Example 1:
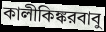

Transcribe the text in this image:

কালীকিঙ্করবাবু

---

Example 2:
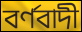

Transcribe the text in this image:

বর্ণবাদী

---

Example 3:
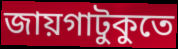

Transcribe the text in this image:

জায়গাটুকুতে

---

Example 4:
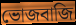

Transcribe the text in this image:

ভোজবাজি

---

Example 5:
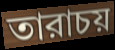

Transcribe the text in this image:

তারাচয়